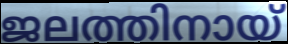
ജലത്തിനായ്